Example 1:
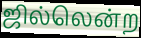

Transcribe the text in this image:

ஜில்லென்ற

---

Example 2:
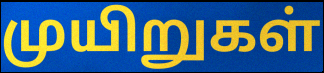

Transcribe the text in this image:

முயிறுகள்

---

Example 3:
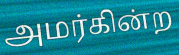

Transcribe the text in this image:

அமர்கின்ற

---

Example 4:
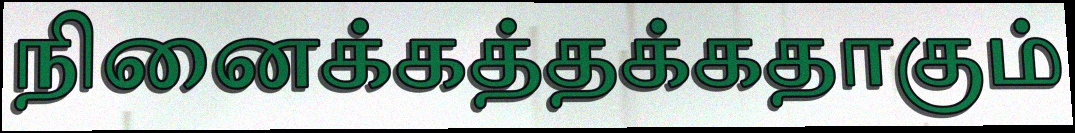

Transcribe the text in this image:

நினைக்கத்தக்கதாகும்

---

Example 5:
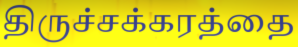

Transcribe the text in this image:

திருச்சக்கரத்தை